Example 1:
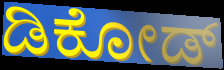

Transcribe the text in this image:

ಡಿಕೋಡ್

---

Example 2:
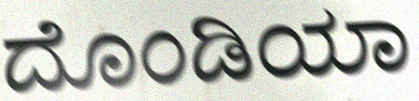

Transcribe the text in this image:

ದೊಂಡಿಯಾ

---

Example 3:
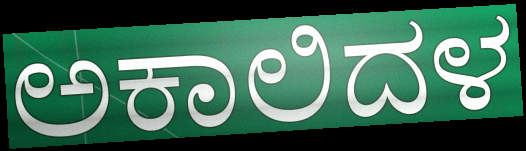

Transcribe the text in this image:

ಅಕಾಲಿದಳ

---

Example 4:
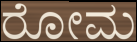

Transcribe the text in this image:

ರೋಮ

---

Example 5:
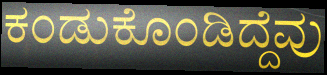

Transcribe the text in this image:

ಕಂಡುಕೊಂಡಿದ್ದೆವು